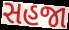
સહજા